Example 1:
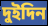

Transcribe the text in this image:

দুইদিন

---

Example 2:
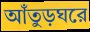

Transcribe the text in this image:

আঁতুড়ঘরে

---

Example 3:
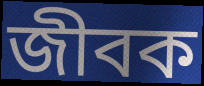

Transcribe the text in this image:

জীবক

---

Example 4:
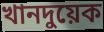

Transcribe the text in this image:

খানদুয়েক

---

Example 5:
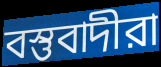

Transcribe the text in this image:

বস্তুবাদীরা